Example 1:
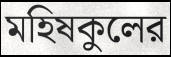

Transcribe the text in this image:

মহিষকুলের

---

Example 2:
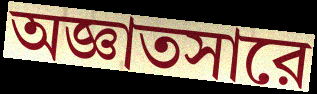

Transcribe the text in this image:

অজ্ঞাতসারে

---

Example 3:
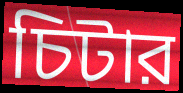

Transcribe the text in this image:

চিটার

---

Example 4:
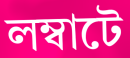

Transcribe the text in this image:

লম্বাটে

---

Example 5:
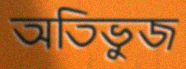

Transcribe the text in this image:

অতিভুজ